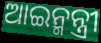
ଆଇନ୍ମନ୍ତ୍ରୀ